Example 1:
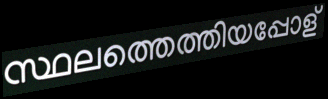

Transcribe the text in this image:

സ്ഥലത്തെത്തിയപ്പോള്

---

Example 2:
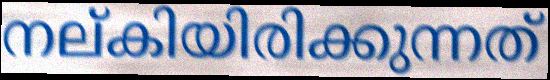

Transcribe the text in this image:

നല്കിയിരിക്കുന്നത്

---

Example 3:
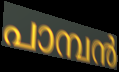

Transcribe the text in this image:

പാമ്പൻ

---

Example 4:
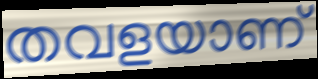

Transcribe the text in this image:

തവളയാണ്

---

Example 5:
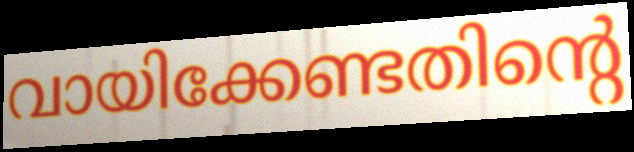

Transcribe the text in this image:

വായിക്കേണ്ടതിന്റെ